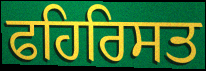
ਫਹਿਰਿਸਤ